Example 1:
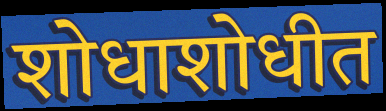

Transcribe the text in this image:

शोधाशोधीत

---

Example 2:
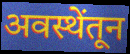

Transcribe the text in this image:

अवस्थेंतून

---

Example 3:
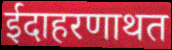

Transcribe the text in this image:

ईदाहरणाथत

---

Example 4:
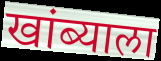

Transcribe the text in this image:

खांब्याला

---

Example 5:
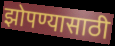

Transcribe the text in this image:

झोपण्यासाठी